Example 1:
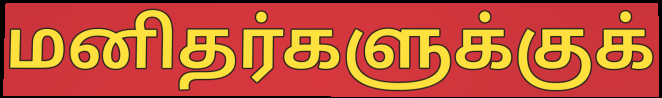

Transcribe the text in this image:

மனிதர்களுக்குக்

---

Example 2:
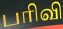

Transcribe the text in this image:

பரிவி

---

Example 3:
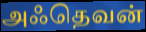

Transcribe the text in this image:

அஃதெவன்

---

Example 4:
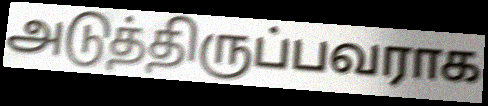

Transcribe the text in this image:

அடுத்திருப்பவராக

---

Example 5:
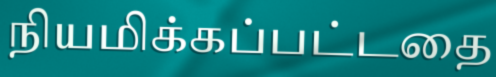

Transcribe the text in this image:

நியமிக்கப்பட்டதை